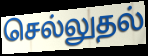
செல்லுதல்